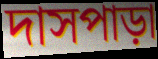
দাসপাড়া